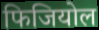
फिजियोल